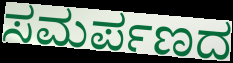
ಸಮರ್ಪಣದ